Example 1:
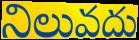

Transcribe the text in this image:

నిలువదు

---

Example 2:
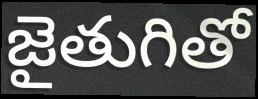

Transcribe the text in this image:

జైతుగితో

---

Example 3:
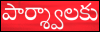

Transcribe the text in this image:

పార్శ్వాలకు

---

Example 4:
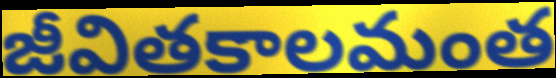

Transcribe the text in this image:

జీవితకాలమంత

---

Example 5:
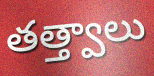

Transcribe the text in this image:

తత్త్వాలు